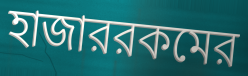
হাজাররকমের